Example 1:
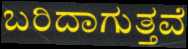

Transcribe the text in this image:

ಬರಿದಾಗುತ್ತವೆ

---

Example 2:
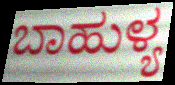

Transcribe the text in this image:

ಬಾಹುಳ್ಯ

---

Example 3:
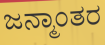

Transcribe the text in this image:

ಜನ್ಮಾಂತರ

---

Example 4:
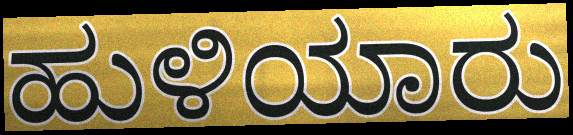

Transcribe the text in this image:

ಹುಳಿಯಾರು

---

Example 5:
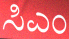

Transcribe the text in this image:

ಸಿಎಂ